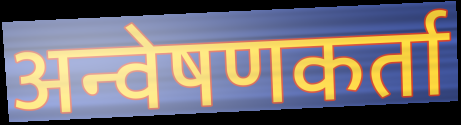
अन्वेषणकर्ता